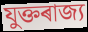
যুক্তৰাজ্য